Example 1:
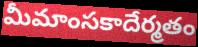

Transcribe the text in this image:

మీమాంసకాదేర్మతం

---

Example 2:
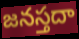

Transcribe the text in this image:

జనస్తదా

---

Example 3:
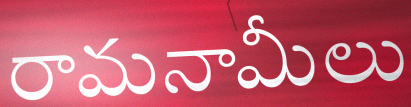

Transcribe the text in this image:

రామనామీలు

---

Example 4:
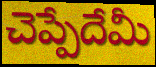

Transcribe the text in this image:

చెప్పేదేమీ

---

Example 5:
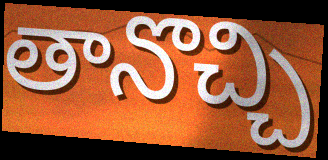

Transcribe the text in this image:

తానొచ్చి